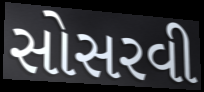
સોસરવી